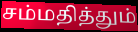
சம்மதித்தும்